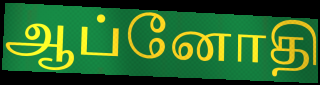
ஆப்னோதி